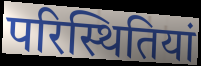
परिस्थितियां